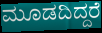
ಮೂಡದಿದ್ದರೆ